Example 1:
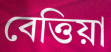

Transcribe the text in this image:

বেত্তিয়া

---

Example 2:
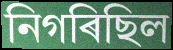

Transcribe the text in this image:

নিগৰিছিল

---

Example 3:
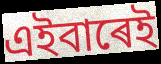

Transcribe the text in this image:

এইবাৰেই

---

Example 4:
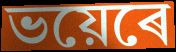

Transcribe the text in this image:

ভয়েৰে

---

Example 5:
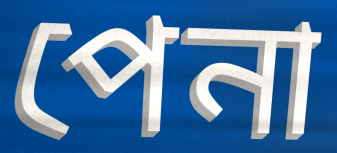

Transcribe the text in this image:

পেনা